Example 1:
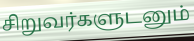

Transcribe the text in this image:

சிறுவர்களுடனும்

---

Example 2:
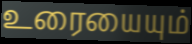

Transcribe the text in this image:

உரையையும்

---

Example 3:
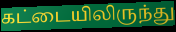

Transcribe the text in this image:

கட்டையிலிருந்து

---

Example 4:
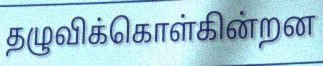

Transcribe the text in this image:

தழுவிக்கொள்கின்றன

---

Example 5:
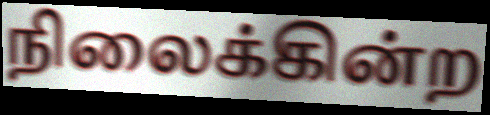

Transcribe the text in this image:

நிலைக்கின்ற